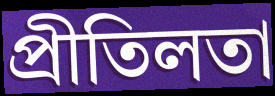
প্রীতিলতা